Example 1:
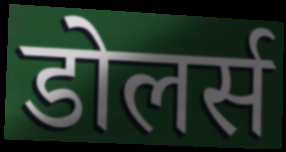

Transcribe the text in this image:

डोलर्स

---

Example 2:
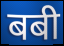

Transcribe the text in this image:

बबी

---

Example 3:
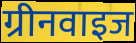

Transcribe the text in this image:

ग्रीनवाइज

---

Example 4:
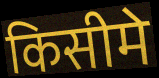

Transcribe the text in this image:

किसीमे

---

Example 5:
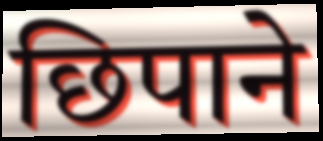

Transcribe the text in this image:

छिपाने